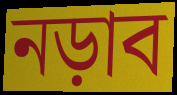
নড়াব